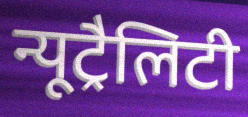
न्यूट्रैलिटी